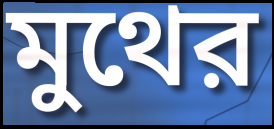
মুথের